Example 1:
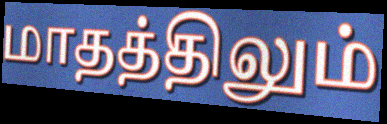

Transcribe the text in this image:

மாதத்திலும்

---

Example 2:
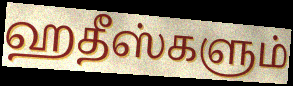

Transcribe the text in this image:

ஹதீஸ்களும்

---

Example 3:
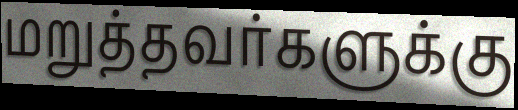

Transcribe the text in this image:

மறுத்தவர்களுக்கு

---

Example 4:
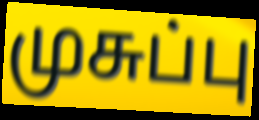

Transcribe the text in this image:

முசுப்பு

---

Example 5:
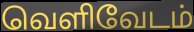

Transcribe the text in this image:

வெளிவேடம்